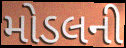
મોડલની